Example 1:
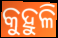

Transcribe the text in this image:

କୁହୁଳି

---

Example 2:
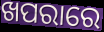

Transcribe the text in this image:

ଖପରାରେ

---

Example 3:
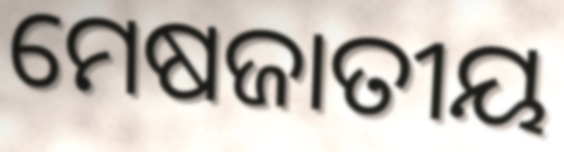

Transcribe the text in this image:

ମେଷଜାତୀୟ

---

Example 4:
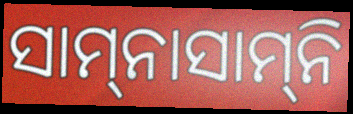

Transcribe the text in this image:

ସାମ୍‍ନାସାମ୍‍ନି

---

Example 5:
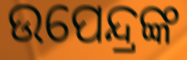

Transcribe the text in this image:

ଉପେନ୍ଦ୍ରଙ୍କ